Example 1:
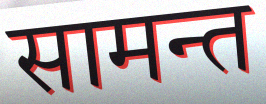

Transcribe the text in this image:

सामन्त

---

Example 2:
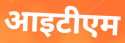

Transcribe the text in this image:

आइटीएम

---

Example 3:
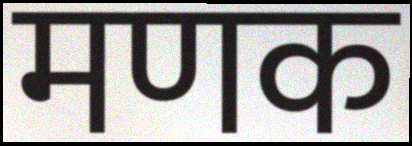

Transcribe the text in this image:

मणक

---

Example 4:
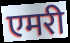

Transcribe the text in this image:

एमरी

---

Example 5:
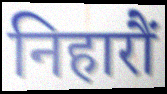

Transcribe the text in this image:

निहारौं